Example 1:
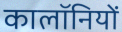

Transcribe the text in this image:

कालॉनियों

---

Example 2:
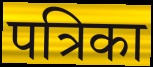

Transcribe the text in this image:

पत्रिका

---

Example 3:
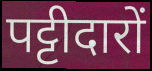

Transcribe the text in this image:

पट्टीदारों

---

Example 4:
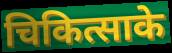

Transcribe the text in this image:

चिकित्साके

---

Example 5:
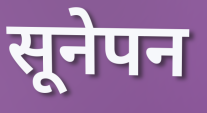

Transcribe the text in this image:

सूनेपन